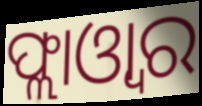
ଫ୍ଲାଓ୍ବାର